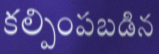
కల్పింపబడిన